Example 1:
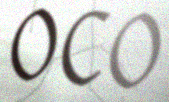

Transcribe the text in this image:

OCO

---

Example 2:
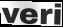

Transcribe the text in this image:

veri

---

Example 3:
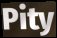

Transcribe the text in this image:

Pity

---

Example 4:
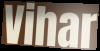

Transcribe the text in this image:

Vihar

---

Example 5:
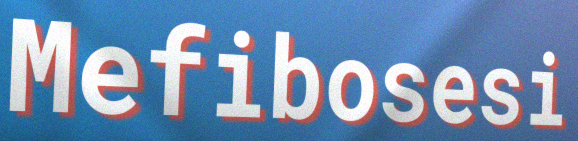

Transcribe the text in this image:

Mefibosesi